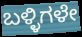
ಬಳ್ಳಿಗಳೇ